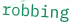
robbing